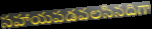
సహాయపడవలసినదిగా